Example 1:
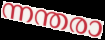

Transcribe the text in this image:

ന്നന്തരാ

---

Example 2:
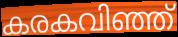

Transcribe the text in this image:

കരകവിഞ്ഞ്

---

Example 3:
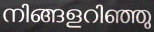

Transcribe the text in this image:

നിങ്ങളറിഞ്ഞു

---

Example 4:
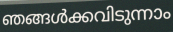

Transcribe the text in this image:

ഞങ്ങൾക്കവിടുന്നാം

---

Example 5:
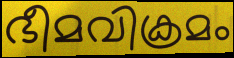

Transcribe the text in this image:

ഭീമവിക്രമം